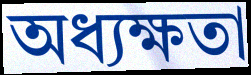
অধ্যক্ষতা